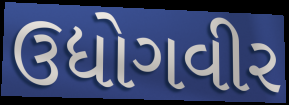
ઉદ્યોગવીર